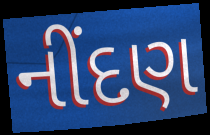
નીંદણ